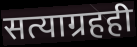
सत्याग्रहही